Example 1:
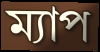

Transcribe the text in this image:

ম্যাপ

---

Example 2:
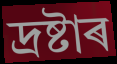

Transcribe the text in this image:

দ্ৰষ্টাৰ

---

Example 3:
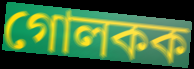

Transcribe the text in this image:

গোলকক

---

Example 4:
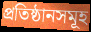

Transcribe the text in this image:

প্ৰতিষ্ঠানসমূহ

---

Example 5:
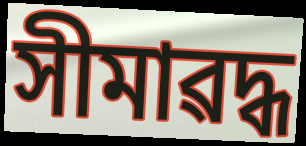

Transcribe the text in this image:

সীমাৱদ্ধ